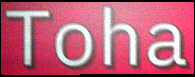
Toha